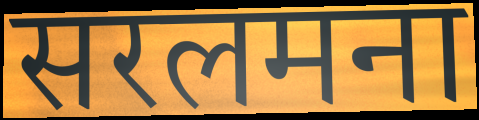
सरलमना